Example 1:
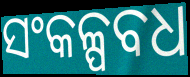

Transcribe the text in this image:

ସଂକଳ୍ପବଧ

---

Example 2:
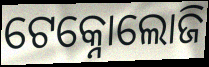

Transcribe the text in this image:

ଟେକ୍ନୋଲୋଜି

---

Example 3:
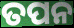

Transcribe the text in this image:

ତପନ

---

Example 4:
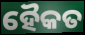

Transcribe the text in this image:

ହୈକତ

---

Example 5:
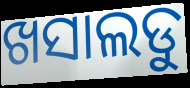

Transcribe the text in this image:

ଖସାଲଡୁ